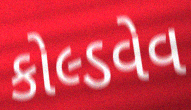
કોલ્ડવેવ